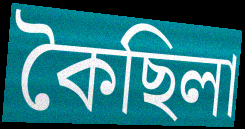
কৈছিলা